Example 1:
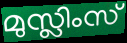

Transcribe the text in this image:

മുസ്ലിംസ്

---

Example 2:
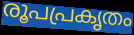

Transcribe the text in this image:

രൂപപ്രകൃതം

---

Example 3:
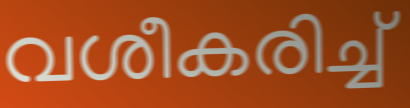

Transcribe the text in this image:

വശീകരിച്ച്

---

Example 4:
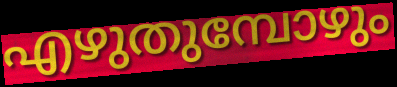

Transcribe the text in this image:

എഴുതുമ്പോഴും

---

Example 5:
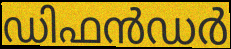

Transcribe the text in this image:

ഡിഫൻഡർ